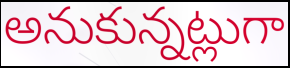
అనుకున్నట్లుగా